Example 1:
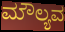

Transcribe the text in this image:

ಮೌಲ್ಯವ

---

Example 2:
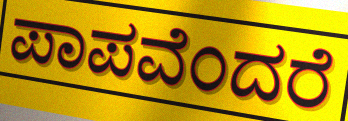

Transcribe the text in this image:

ಪಾಪವೆಂದರೆ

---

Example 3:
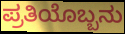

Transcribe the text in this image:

ಪ್ರತಿಯೊಬ್ಬನು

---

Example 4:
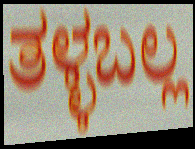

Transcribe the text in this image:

ತಳ್ಳಬಲ್ಲ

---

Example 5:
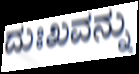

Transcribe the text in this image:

ದುಃಖವನ್ನು